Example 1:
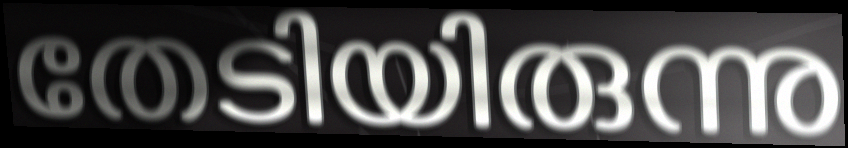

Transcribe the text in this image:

തേടിയിരുന്നു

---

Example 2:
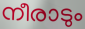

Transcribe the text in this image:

നീരാടും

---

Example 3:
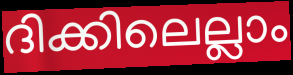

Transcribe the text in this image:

ദിക്കിലെല്ലാം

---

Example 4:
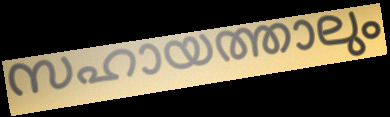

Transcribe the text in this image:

സഹായത്താലും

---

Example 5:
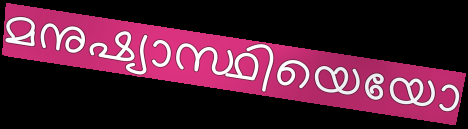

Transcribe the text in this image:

മനുഷ്യാസ്ഥിയെയോ